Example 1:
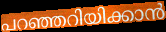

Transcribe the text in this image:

പറഞ്ഞറിയിക്കാൻ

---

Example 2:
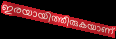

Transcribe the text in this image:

ഇരയായിത്തീരുകയാണ്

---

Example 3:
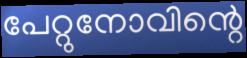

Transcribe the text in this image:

പേറ്റുനോവിന്റെ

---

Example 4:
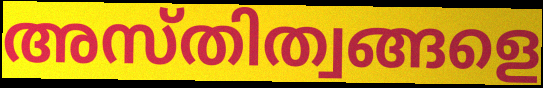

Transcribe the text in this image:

അസ്തിത്വങ്ങളെ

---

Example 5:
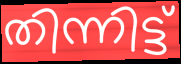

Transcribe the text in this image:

തിന്നിട്ട്